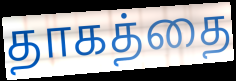
தாகத்தை